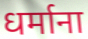
धर्माना